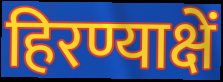
हिरण्याक्षें